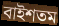
বাইশতম